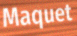
Maquet